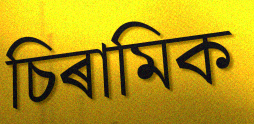
চিৰামিক